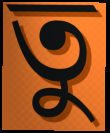
তু